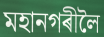
মহানগৰীলৈ